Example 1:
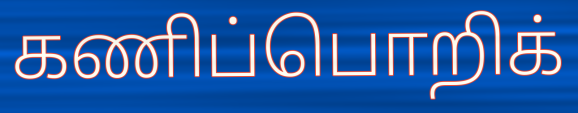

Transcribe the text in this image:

கணிப்பொறிக்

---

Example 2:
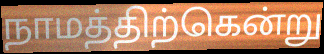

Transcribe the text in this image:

நாமத்திற்கென்று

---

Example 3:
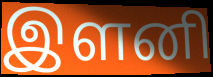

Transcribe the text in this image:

இளனி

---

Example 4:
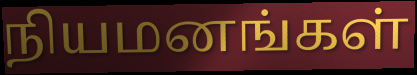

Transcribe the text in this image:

நியமனங்கள்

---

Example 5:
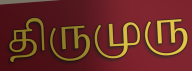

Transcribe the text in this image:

திருமுரு